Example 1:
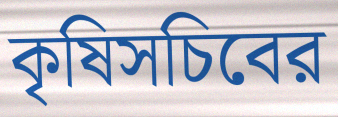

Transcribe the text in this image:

কৃষিসচিবের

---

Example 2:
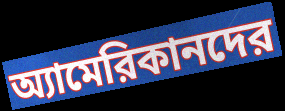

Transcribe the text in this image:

অ্যামেরিকানদের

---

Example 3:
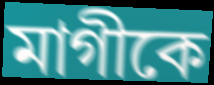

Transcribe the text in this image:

মাগীকে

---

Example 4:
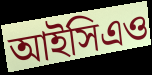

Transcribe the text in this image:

আইসিএও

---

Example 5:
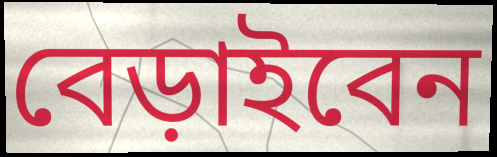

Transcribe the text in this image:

বেড়াইবেন